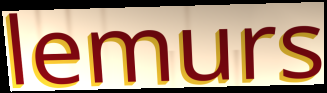
lemurs